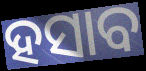
ହସାବ